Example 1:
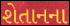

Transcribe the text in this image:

શેતાનના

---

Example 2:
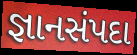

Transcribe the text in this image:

જ્ઞાનસંપદા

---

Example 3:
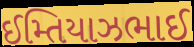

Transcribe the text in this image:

ઈમ્તિયાઝભાઈ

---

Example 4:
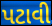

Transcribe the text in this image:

પટાવી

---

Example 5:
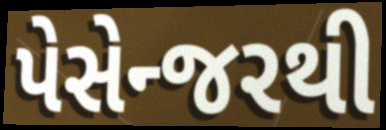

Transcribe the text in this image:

પેસેન્જરથી